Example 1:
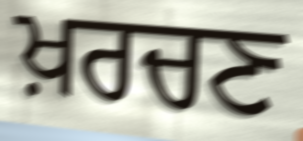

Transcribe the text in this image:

ਖ਼ਰਚਣ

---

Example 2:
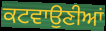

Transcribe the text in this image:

ਕਟਵਾਉਣੀਆਂ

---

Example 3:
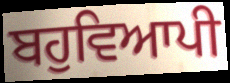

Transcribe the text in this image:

ਬਹੁਵਿਆਪੀ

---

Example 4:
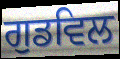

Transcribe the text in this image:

ਗੁਡਵਿਲ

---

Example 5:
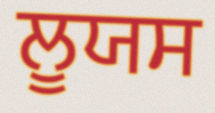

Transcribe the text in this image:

ਲੂਯਸ